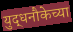
युद्धनौकेच्या